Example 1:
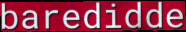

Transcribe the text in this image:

baredidde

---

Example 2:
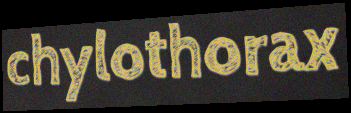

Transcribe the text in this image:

chylothorax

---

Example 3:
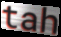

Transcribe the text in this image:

tah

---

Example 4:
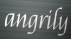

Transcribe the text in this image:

angrily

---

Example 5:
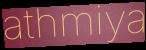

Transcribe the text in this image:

athmiya